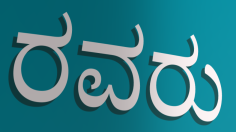
ರವರು